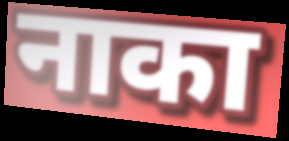
नाका